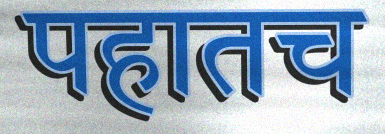
पहातच